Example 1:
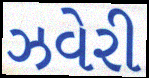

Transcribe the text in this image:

ઝવેરી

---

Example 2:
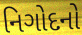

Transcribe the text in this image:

નિગોદનો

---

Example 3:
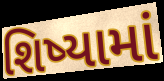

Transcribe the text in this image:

શિષ્યામાં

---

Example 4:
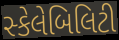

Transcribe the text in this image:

સ્કેલેબિલિટી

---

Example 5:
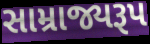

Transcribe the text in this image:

સામ્રાજ્યરૂપ